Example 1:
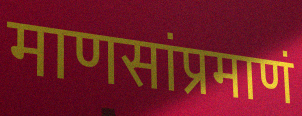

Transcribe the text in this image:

माणसांप्रमाणं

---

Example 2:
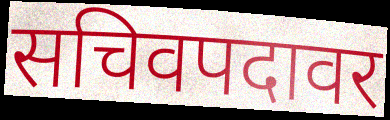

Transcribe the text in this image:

सचिवपदावर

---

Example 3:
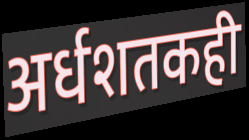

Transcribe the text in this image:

अर्धशतकही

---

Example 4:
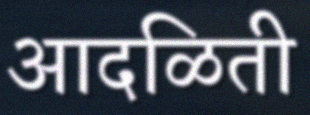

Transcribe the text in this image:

आदळिती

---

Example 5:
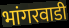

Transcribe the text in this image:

भांगरवाडी